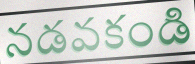
నడవకండి